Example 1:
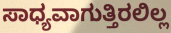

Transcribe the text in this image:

ಸಾಧ್ಯವಾಗುತ್ತಿರಲಿಲ್ಲ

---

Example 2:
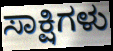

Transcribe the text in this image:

ಸಾಕ್ಷಿಗಳು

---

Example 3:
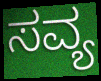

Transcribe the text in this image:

ಸವ್ಯ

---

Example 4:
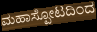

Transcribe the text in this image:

ಮಹಾಸ್ಪೋಟದಿಂದ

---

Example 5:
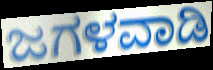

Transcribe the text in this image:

ಜಗಳವಾಡಿ